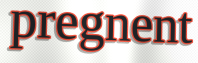
pregnent